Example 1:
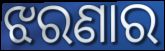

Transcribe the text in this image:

ଝରଣାର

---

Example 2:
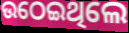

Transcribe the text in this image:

ଉଠେଇଥିଲେ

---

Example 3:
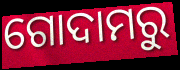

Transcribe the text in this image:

ଗୋଦାମରୁ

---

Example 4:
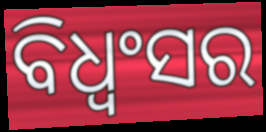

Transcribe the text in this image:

ବିଧ୍ୱଂସର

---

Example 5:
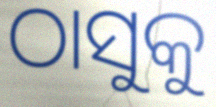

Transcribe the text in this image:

ଠାସୁକୁ